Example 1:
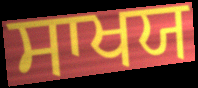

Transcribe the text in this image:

ਸਾਖਯ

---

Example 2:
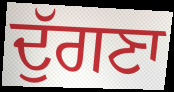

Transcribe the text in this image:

ਦੁੱਗਣਾ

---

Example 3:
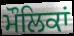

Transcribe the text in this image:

ਮੌਲਿਕਾਂ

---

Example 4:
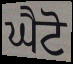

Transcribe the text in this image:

ਘੈਟੋ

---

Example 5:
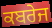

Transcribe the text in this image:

ਕਬਰੇਜ